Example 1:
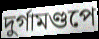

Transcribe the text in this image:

দুর্গামণ্ডপে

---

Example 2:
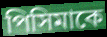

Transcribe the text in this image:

পিসিমাকে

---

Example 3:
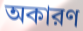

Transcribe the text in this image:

অকারণ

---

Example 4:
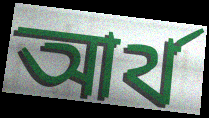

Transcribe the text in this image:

আর্থ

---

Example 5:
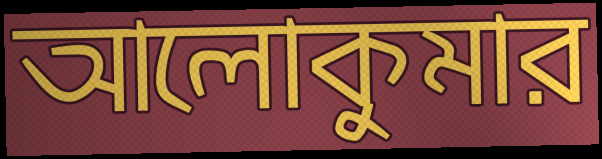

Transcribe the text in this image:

আলোকুমার